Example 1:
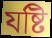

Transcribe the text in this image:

যষ্টি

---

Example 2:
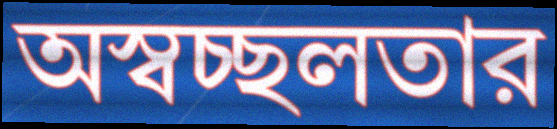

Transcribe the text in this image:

অস্বচ্ছলতার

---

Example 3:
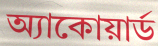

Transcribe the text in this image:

অ্যাকোয়ার্ড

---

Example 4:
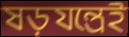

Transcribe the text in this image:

ষড়যন্ত্রেই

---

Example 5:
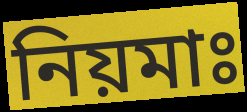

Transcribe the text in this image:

নিয়মাঃ